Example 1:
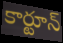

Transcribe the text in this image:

కార్టూన్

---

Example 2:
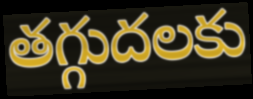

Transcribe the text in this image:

తగ్గుదలకు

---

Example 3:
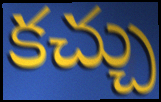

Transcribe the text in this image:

కచ్చు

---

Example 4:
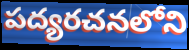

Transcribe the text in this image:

పద్యరచనలోని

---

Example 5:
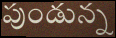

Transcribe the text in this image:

పుండున్న